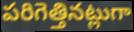
పరిగెత్తినట్లుగా